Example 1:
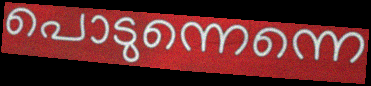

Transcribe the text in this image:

പൊടുന്നെന്നെ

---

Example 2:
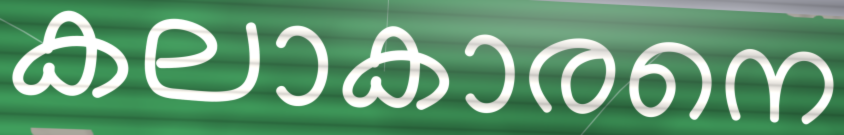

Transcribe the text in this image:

കലാകാരനെ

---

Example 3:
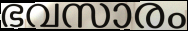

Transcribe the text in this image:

ഭവസാരം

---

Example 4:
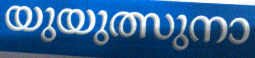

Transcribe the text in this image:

യുയുത്സുനാ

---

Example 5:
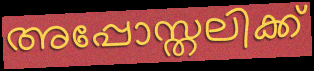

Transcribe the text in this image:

അപ്പോസ്തലിക്ക്